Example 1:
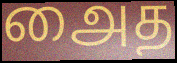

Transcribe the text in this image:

அைத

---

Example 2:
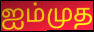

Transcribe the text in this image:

ஐம்முத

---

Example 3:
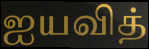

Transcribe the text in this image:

ஐயவித்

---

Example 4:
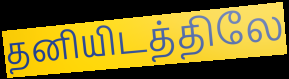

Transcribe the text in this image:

தனியிடத்திலே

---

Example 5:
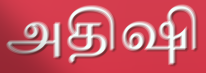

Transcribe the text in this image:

அதிஷி